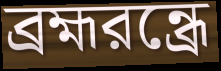
ব্রহ্মরন্ধ্রে